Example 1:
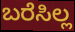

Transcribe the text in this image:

ಬರೆಸಿಲ್ಲ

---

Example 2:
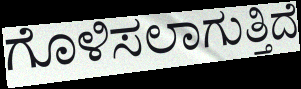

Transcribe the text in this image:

ಗೊಳಿಸಲಾಗುತ್ತಿದೆ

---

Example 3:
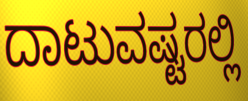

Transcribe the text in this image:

ದಾಟುವಷ್ಟರಲ್ಲಿ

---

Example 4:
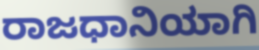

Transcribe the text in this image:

ರಾಜಧಾನಿಯಾಗಿ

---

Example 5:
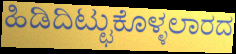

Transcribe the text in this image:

ಹಿಡಿದಿಟ್ಟುಕೊಳ್ಳಲಾರದ